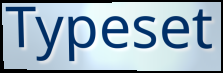
Typeset